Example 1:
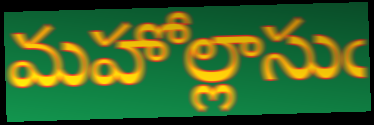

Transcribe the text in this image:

మహోల్లాసుఁ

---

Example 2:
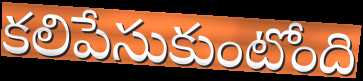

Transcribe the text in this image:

కలిపేసుకుంటోంది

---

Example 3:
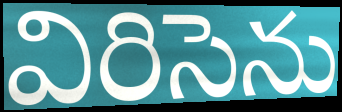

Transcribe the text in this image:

విరిసెను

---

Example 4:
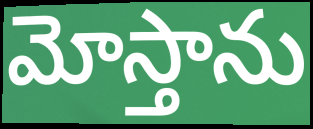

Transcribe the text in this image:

మోస్తాను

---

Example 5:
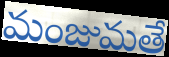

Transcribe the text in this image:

మంజుమతే